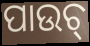
ପାଉଚ୍